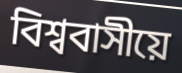
বিশ্ববাসীয়ে